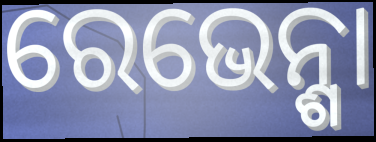
ରେଭେନ୍ଶା